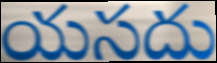
యసదు